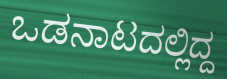
ಒಡನಾಟದಲ್ಲಿದ್ದ